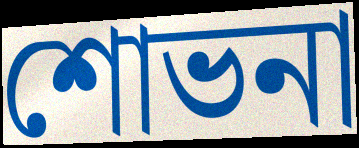
শোভনা